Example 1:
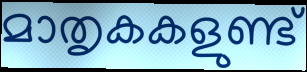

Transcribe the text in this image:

മാതൃകകളുണ്ട്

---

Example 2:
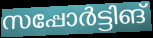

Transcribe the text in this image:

സപ്പോർട്ടിങ്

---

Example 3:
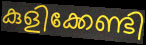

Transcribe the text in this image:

കുളിക്കേണ്ടി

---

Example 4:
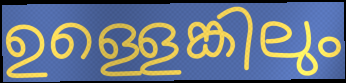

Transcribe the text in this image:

ഉള്ളെങ്കിലും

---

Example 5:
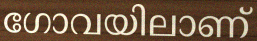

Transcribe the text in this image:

ഗോവയിലാണ്